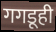
गगडूही